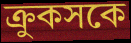
ক্রুকসকে